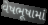
વેષભૂષામાં